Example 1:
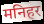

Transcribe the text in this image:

मनिहर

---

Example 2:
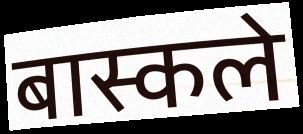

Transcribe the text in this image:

बास्कले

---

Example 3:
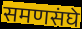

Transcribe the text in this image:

समणसंघे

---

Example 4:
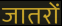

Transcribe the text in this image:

जातरों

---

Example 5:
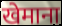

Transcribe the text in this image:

खेमाना